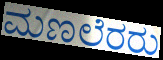
ಮಣಲೆರರು